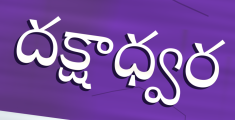
దక్షాధ్వర